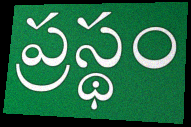
ప్రస్థం